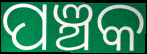
ପଞ୍ଚକ